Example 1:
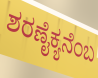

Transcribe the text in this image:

ಶರಣೈಕ್ಯನೆಂಬ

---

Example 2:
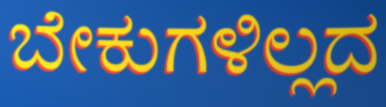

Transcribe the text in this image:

ಬೇಕುಗಳಿಲ್ಲದ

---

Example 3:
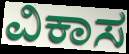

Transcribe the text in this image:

ವಿಕಾಸ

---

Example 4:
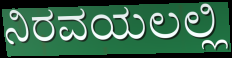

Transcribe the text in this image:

ನಿರವಯಲಲ್ಲಿ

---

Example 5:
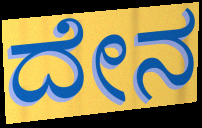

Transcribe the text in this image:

ದೇನ